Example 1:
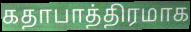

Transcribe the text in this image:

கதாபாத்திரமாக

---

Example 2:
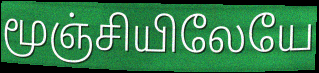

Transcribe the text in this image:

மூஞ்சியிலேயே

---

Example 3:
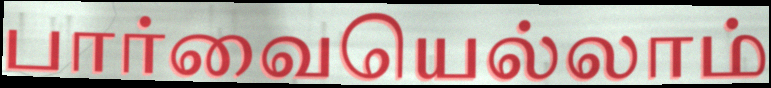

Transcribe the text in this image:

பார்வையெல்லாம்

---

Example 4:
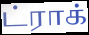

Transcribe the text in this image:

ட்ராக்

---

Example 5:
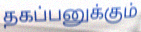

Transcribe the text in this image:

தகப்பனுக்கும்